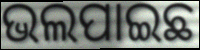
ଭଲପାଇଛ